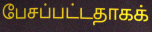
பேசப்பட்டதாகக்